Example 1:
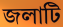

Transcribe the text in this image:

জলাটি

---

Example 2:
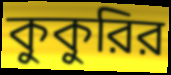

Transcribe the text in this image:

কুকুরির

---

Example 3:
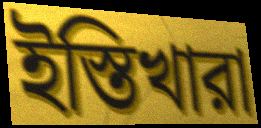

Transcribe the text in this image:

ইস্তিখারা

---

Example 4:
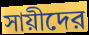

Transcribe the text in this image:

সায়ীদের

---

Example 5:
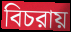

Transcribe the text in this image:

বিচরায়